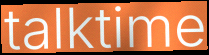
talktime